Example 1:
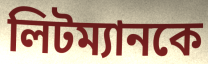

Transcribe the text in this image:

লিটম্যানকে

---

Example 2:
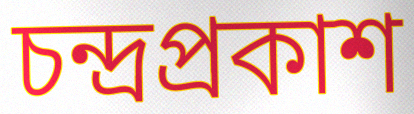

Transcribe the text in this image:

চন্দ্রপ্রকাশ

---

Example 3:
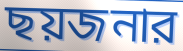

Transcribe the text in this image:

ছয়জনার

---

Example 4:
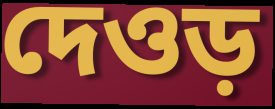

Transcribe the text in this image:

দেওড়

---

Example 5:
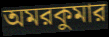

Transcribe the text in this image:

অমরকুমার